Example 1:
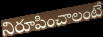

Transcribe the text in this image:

నిరూపించాలంటే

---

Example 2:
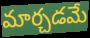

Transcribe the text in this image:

మార్చడమే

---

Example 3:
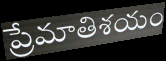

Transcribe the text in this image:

ప్రేమాతిశయం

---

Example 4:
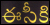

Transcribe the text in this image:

ఈసీకి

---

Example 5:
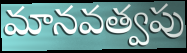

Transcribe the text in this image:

మానవత్వపు